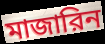
মাজারিন